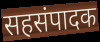
सहसंपादक